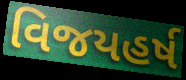
વિજયહર્ષ